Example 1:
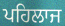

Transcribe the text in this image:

ਪਹਿਲਾਜ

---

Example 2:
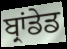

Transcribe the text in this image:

ਬ੍ਰਾਂਡੇਡ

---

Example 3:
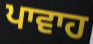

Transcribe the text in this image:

ਪਾਵਾਹ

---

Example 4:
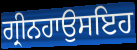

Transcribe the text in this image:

ਗ੍ਰੀਨਹਾਉਸਇਹ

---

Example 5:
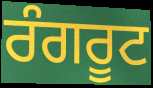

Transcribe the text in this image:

ਰੰਗਰੂਟ